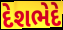
દેશભેદે